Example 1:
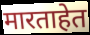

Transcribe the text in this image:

मारताहेत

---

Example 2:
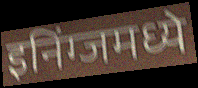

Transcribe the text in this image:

इनिंग्जमध्ये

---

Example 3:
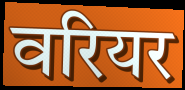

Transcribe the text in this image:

वरियर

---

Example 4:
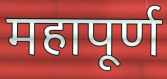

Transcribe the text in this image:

महापूर्ण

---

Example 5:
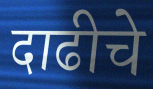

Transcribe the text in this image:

दाढीचे